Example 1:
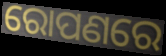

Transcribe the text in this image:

ରୋପଣରେ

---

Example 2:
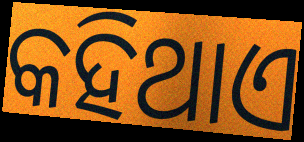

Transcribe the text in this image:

କହିଥାଏ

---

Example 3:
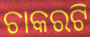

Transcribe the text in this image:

ଚାକରଟି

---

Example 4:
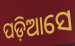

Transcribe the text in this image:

ପଡ଼ିଆସେ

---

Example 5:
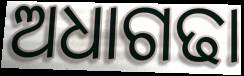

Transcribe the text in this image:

ଅଧାଗଢା